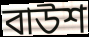
বাউশ